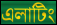
এলাটিং